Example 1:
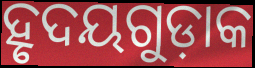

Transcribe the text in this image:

ହୃଦୟଗୁଡ଼ାକ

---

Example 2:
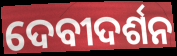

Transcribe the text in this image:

ଦେବୀଦର୍ଶନ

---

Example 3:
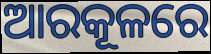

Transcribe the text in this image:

ଆରକୂଳରେ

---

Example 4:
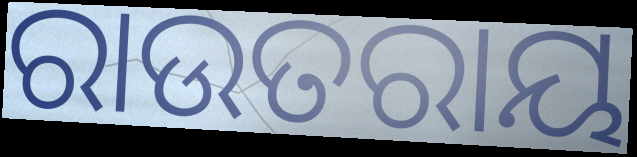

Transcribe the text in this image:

ରାଉତରାୟ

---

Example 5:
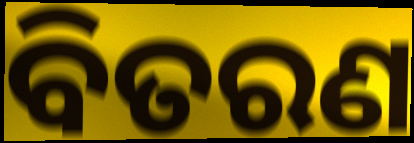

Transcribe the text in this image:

ବିତରଣ